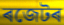
ৰজেটৰ